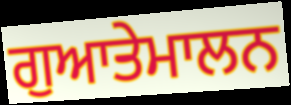
ਗੁਆਤੇਮਾਲਨ